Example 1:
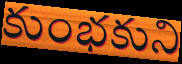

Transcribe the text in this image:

కుంభకుని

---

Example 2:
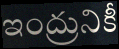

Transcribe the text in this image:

ఇంద్రునికీ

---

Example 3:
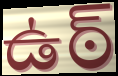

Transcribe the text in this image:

ఉఠ్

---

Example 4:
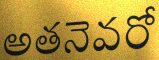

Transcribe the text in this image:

అతనెవరో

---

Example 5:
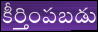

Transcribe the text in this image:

కీర్తింపబడు